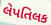
લેપતિલક